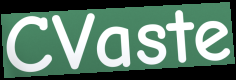
CVaste